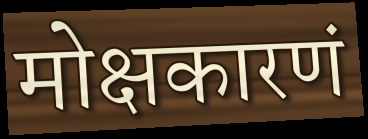
मोक्षकारणं